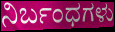
ನಿರ್ಬಂಧಗಳು